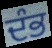
ਦੰਭ